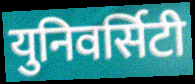
युनिवर्सिटी